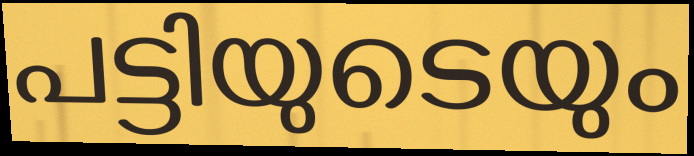
പട്ടിയുടെയും